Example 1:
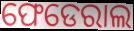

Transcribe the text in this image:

ଫେଡେରାଲ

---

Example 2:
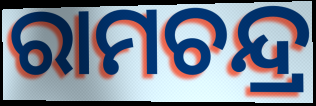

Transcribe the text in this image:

ରାମଚନ୍ଦ୍ର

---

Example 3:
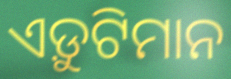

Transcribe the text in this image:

ଏଡ଼ୁଟିମାନ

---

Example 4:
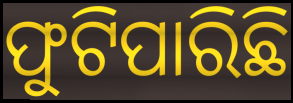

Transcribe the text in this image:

ଫୁଟିପାରିଛି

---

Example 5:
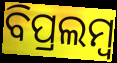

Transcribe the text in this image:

ବିପ୍ରଲମ୍ବ